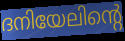
ദനിയേലിന്റെ